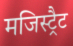
मजिस्ट्रैट